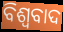
ବିଶ୍ୱବାଦ